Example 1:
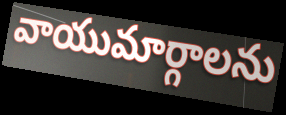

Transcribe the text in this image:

వాయుమార్గాలను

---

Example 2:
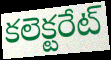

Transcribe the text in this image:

కలెక్టరేట్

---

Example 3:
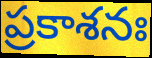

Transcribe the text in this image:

ప్రకాశనః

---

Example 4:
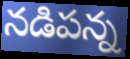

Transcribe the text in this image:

నడిపన్న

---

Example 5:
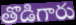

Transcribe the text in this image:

తొడిగారు